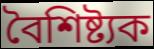
বৈশিষ্ট্যক